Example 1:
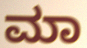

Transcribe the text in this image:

ಮಾ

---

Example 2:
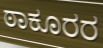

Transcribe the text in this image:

ಠಾಕೂರರ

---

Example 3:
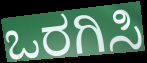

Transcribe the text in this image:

ಒರಗಿಸಿ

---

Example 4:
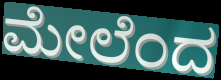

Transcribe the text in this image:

ಮೇಲೆಂದ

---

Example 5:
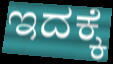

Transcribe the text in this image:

ಇದಕ್ಕೆ